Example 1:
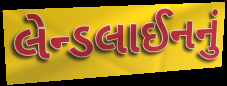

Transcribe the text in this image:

લેન્ડલાઈનનું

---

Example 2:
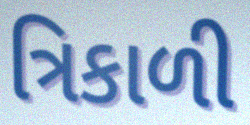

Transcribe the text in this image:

ત્રિકાળી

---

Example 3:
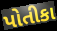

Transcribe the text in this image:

પોતીકા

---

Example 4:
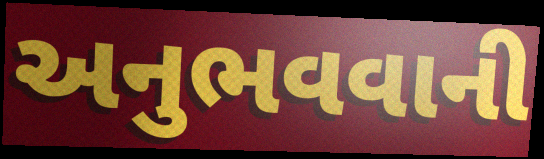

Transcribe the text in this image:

અનુભવવાની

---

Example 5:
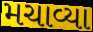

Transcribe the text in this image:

મચાવ્યા